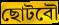
ছোটবৌ